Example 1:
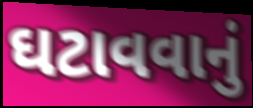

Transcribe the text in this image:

ઘટાવવાનું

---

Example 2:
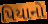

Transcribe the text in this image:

પિયાનો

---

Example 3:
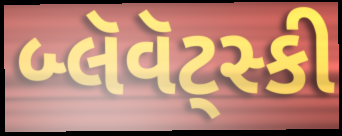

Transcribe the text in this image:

બ્લૅવૅટ્સ્કી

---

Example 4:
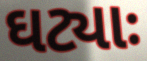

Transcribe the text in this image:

ઘટ્યાઃ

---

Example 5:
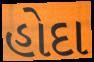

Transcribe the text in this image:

હોદા